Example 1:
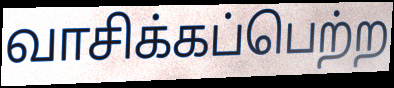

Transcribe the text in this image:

வாசிக்கப்பெற்ற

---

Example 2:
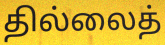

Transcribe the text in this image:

தில்லைத்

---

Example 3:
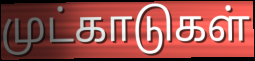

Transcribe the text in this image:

முட்காடுகள்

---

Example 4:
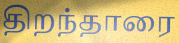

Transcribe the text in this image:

திறந்தாரை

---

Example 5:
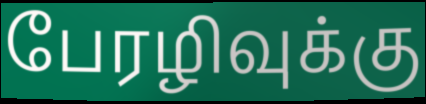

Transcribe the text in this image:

பேரழிவுக்கு